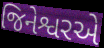
જિનેશ્વરએ